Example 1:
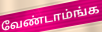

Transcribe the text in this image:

வேண்டாம்ங்க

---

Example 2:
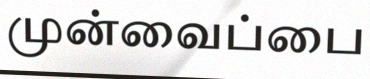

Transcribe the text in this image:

முன்வைப்பை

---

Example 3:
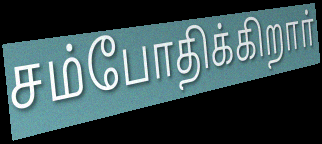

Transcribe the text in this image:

சம்போதிக்கிறார்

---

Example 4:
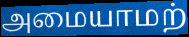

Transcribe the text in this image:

அமையாமற்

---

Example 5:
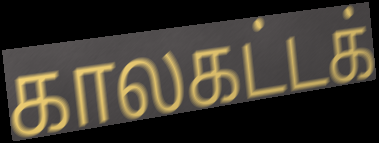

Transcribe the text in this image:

காலகட்டக்